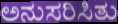
ಅನುಸರಿಸಿತು